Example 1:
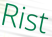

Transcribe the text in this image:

Rist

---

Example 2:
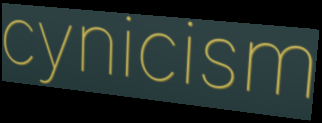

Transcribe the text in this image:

cynicism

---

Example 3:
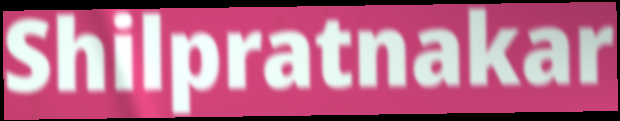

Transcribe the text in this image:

Shilpratnakar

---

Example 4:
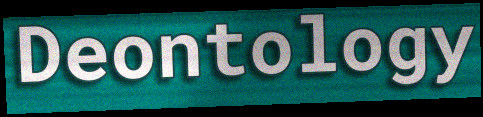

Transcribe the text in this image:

Deontology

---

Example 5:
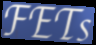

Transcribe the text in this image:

FETs